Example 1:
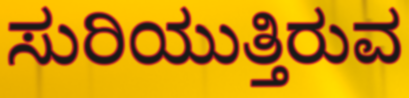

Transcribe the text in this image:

ಸುರಿಯುತ್ತಿರುವ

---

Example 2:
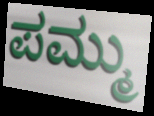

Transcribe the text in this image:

ಪಮ್ಮು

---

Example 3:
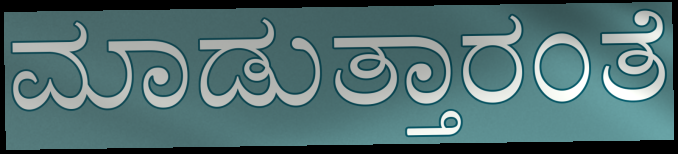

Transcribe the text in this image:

ಮಾಡುತ್ತಾರಂತೆ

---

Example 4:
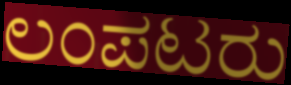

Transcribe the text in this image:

ಲಂಪಟರು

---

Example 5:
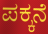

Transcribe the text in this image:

ಪಕ್ಕನೆ